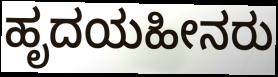
ಹೃದಯಹೀನರು